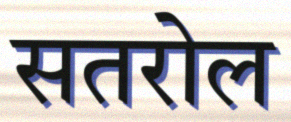
सतरोल